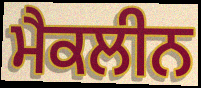
ਮੈਕਲੀਨ